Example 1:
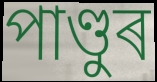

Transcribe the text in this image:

পাণ্ডুৰ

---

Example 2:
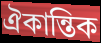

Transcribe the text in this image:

ঐকান্তিক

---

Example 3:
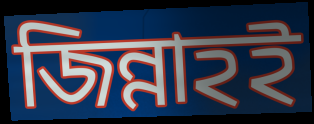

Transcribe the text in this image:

জিন্নাহই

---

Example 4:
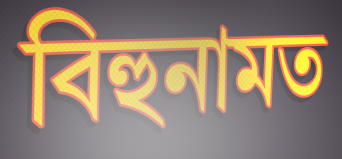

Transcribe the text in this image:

বিহুনামত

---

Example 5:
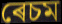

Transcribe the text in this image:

ৰেচম